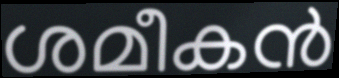
ശമീകൻ